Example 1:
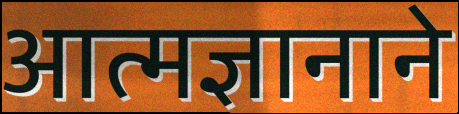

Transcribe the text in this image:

आत्मज्ञानाने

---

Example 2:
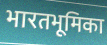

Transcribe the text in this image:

भारतभूमिका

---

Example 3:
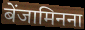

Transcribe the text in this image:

बेंजामिनना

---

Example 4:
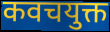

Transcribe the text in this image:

कवचयुक्त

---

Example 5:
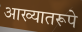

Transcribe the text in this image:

आख्यातरूपे